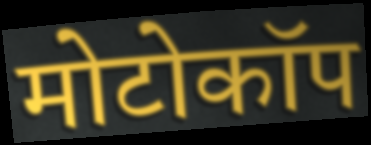
मोटोकॉप